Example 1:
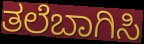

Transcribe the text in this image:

ತಲೆಬಾಗಿಸಿ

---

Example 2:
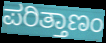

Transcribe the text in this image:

ಪರಿತ್ತಾಣಂ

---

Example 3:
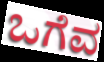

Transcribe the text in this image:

ಒಗೆವ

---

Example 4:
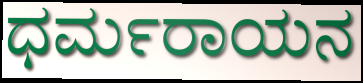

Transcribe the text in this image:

ಧರ್ಮರಾಯನ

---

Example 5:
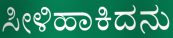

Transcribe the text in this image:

ಸೀಳಿಹಾಕಿದನು